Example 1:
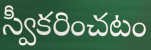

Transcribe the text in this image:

స్వీకరించటం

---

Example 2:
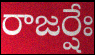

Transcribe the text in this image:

రాజర్షేః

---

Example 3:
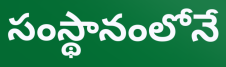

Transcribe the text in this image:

సంస్థానంలోనే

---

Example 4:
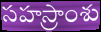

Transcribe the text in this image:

సహస్రాంశు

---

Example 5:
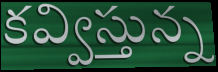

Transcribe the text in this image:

కవ్విస్తున్న